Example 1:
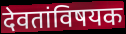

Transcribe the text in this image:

देवतांविषयक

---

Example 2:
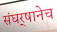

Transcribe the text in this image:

संघर्षानेच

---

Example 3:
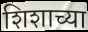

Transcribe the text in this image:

शिशाच्या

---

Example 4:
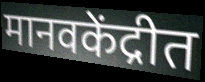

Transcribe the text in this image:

मानवकेंद्रीत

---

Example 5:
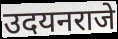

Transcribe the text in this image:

उदयनराजे